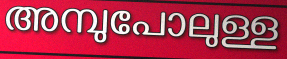
അമ്പുപോലുള്ള